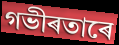
গভীৰতাৰে